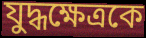
যুদ্ধক্ষেত্রকে